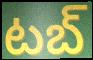
టబ్